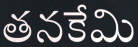
తనకేమి